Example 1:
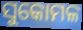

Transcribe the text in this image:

ସୁକୋମଳ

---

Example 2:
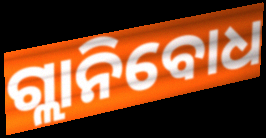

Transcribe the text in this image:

ଗ୍ଲାନିବୋଧ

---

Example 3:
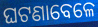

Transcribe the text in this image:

ଘଟଣାବେଳେ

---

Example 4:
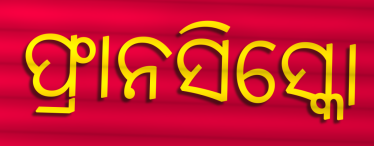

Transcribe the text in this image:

ଫ୍ରାନସିସ୍କୋ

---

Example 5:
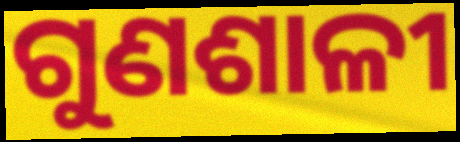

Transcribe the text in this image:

ଗୁଣଶାଳୀ